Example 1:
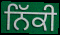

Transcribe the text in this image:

ਨਿੱਕੀ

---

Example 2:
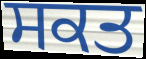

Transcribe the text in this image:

ਸਕਤ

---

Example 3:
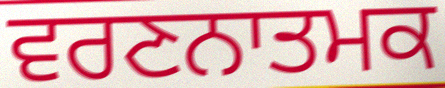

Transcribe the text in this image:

ਵਰਣਨਾਤਮਕ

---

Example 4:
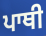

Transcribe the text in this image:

ਪਾਥੀ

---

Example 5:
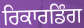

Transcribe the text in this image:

ਰਿਕਾਰਡਿੰਗ